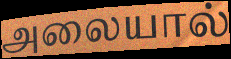
அலையால்